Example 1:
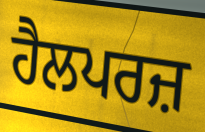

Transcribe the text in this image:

ਹੈਲਪਰਜ਼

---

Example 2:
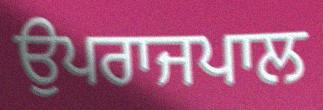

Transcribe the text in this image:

ਉਪਰਾਜਪਾਲ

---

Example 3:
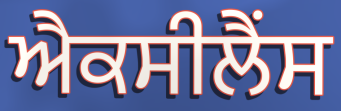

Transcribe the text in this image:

ਐਕਸੀਲੈਂਸ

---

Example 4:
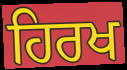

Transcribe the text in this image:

ਹਿਰਖ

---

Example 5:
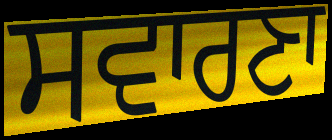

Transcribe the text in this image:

ਸਵਾਰਣਾ